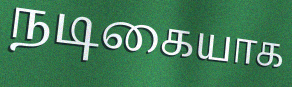
நடிகையாக